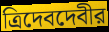
ত্রিদেবদেবীর